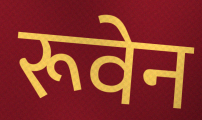
रूवेन